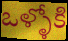
ఒళ్ళోకి